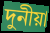
দুনীয়া